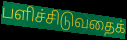
பளிச்சிடுவதைக்